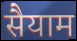
सैयाम